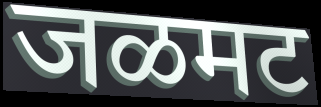
जळमट